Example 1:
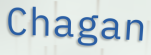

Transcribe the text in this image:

Chagan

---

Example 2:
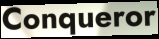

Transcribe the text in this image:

Conqueror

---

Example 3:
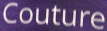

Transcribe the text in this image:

Couture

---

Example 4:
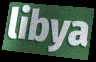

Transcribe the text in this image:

libya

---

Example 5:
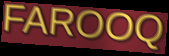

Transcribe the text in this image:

FAROOQ